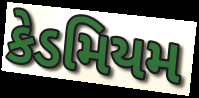
કેડમિયમ